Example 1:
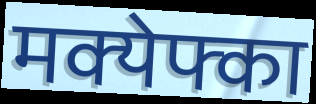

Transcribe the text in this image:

मक्येफ्का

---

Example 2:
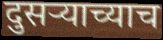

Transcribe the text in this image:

दुसऱ्याच्याच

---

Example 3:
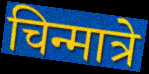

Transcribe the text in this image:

चिन्मात्रे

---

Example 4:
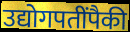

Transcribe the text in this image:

उद्योगपतींपैकी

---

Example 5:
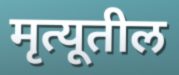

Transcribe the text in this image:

मृत्यूतील